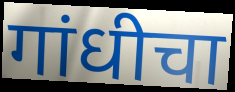
गांधीचा